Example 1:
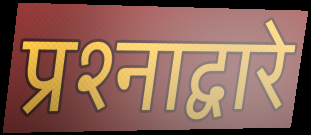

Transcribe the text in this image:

प्रश्नाद्वारे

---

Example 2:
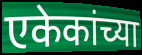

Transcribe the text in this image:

एकेकांच्या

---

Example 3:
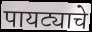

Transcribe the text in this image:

पायट्याचे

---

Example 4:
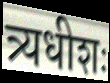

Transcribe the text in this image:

त्र्यधीशः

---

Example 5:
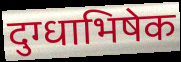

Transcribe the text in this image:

दुग्धाभिषेक